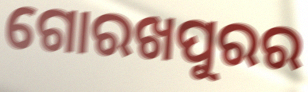
ଗୋରଖପୁରର